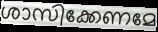
ശാസിക്കേണമേ